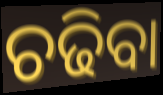
ଚଢିବା